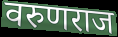
वरुणराज